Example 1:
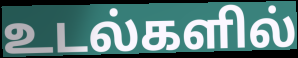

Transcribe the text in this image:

உடல்களில்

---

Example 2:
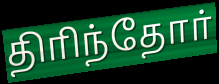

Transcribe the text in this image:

திரிந்தோர்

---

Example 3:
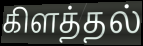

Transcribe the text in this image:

கிளத்தல்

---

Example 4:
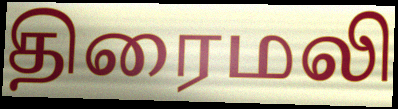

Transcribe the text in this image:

திரைமலி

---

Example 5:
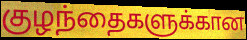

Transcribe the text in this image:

குழந்தைகளுக்கான